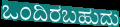
ಒಂದಿರಬಹುದು